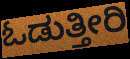
ಓಡುತ್ತೀರಿ